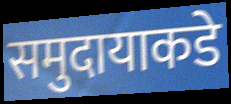
समुदायाकडे